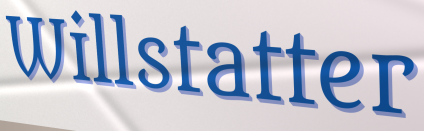
Willstatter